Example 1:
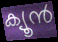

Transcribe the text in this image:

ക്യൂൻ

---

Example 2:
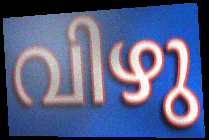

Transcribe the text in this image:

വിഴു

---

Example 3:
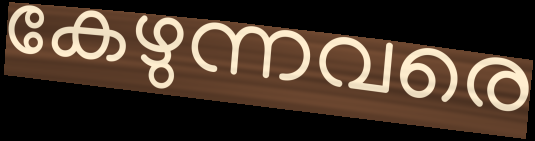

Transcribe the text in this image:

കേഴുന്നവരെ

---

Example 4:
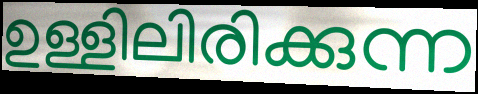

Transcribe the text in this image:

ഉള്ളിലിരിക്കുന്ന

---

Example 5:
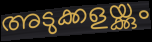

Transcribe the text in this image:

അടുക്കളയ്ക്കും